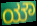
ಯೌ